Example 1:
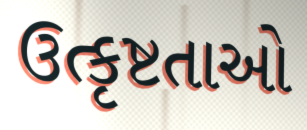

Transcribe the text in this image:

ઉત્કૃષ્ટતાઓ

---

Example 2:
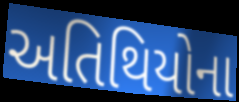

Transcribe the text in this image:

અતિથિયોના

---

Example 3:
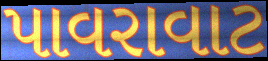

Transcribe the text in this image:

પાવરાવાટ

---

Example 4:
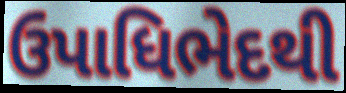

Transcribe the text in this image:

ઉપાધિભેદથી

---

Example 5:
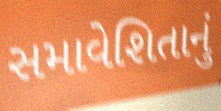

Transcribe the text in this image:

સમાવેશિતાનું